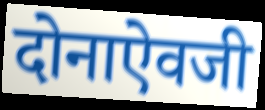
दोनाऐवजी